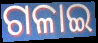
ଗଳାଇ